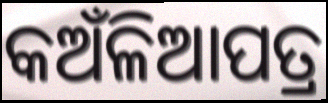
କଅଁଳିଆପତ୍ର